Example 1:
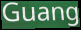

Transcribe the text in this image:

Guang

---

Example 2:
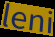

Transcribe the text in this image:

leni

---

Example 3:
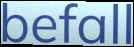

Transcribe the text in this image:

befall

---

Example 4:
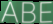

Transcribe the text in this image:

ABE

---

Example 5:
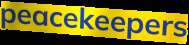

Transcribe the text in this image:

peacekeepers